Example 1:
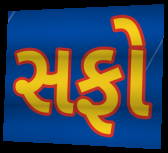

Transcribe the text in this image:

સફો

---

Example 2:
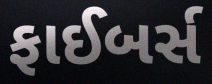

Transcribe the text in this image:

ફાઈબર્સ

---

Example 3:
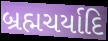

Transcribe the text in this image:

બ્રહ્મચર્યાદિ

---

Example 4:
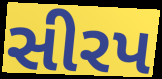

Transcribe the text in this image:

સીરપ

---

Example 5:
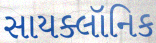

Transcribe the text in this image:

સાયક્લૉનિક